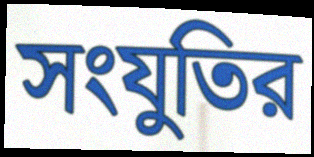
সংযুতির